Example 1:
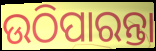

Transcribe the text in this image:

ଉଠିପାରନ୍ତା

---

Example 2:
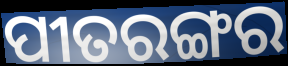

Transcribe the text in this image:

ପୀତରଙ୍ଗର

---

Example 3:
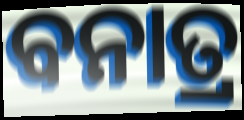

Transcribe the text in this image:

ବନାତ୍ର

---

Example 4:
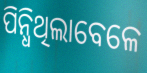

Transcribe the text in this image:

ପିନ୍ଧିଥିଲାବେଳେ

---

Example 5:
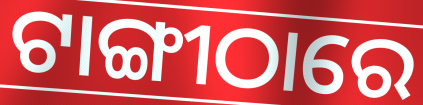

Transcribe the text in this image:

ଟାଙ୍ଗୀଠାରେ